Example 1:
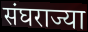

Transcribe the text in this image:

संघराज्या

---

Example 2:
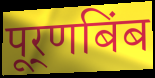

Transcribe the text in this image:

पूर्णबिंब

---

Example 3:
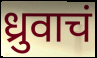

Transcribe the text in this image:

ध्रुवाचं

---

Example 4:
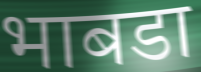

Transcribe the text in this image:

भाबडा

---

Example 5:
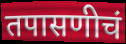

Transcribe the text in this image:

तपासणीचं